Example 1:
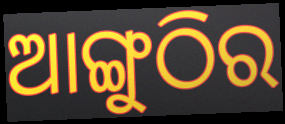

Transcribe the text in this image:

ଆଙ୍ଗୁଠିର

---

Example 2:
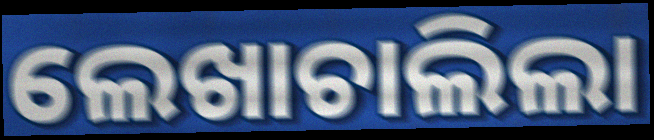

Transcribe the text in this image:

ଲେଖାଚାଲିଲା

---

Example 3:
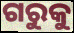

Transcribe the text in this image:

ଗରୁକୁ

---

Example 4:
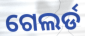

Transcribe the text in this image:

ଗେଲର୍ଡ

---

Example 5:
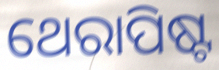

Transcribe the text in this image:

ଥେରାପିଷ୍ଟ